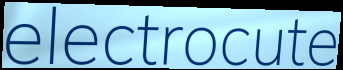
electrocute